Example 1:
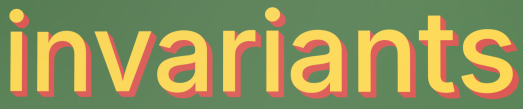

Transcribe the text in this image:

invariants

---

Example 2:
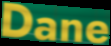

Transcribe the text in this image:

Dane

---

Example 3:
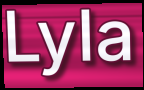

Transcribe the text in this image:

Lyla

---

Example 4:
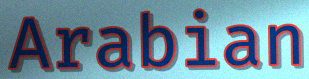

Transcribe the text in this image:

Arabian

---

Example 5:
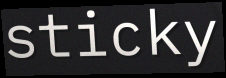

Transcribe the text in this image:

sticky